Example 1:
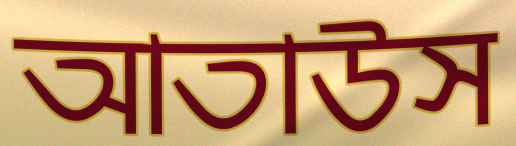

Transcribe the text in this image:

আতাউস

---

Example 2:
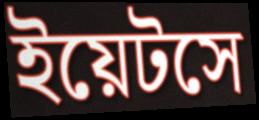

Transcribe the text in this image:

ইয়েটসে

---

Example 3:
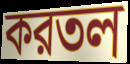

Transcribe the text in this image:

করতল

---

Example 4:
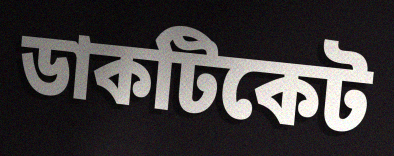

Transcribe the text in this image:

ডাকটিকেট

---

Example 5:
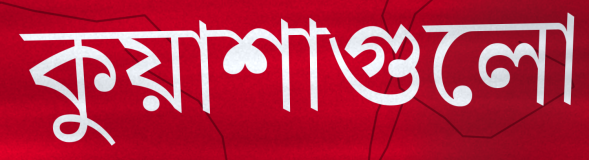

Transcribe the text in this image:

কুয়াশাগুলো